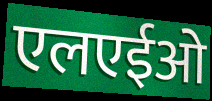
एलएईओ